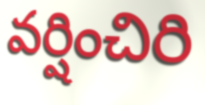
వర్షించిరి